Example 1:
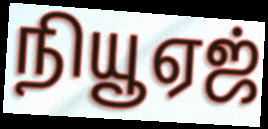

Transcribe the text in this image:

நியூஏஜ்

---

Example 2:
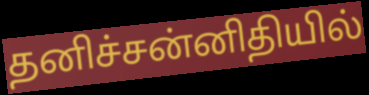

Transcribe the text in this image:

தனிச்சன்னிதியில்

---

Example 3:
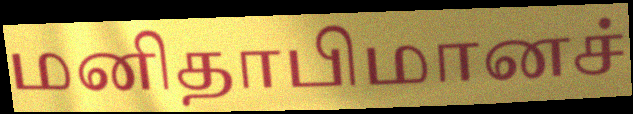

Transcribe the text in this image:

மனிதாபிமானச்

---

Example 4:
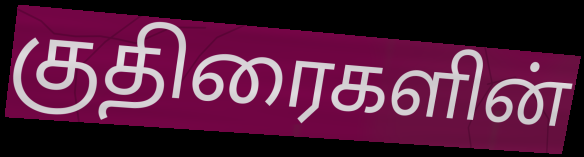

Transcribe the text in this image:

குதிரைகளின்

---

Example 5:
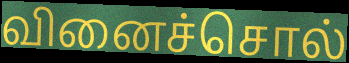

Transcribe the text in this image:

வினைச்சொல்